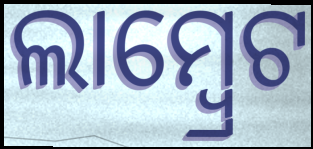
ଲାମ୍ୱ୍ରେଟ